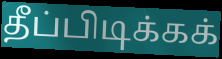
தீப்பிடிக்கக்